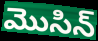
మొసిన్